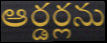
ఆర్డర్లను